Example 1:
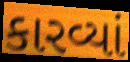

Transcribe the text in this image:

કારવ્યાં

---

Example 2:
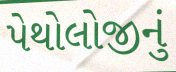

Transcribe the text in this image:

પેથોલોજીનું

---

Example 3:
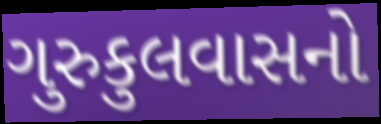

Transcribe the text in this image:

ગુરુકુલવાસનો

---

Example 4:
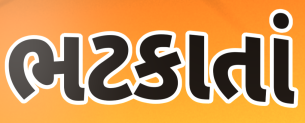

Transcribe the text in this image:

ભટકાતાં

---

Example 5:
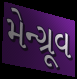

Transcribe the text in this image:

મેન્ગ્રૂવ